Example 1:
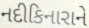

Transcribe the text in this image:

નદીકિનારાને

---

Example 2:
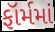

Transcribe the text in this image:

ફૉર્મમાં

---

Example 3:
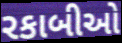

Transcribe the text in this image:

રકાબીઓ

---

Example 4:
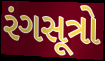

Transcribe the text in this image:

રંગસૂત્રો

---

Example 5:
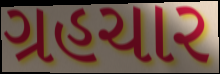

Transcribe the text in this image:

ગ્રહચાર